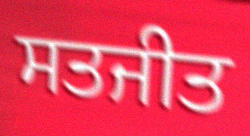
ਸਤਜੀਤ